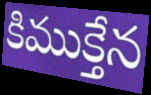
కిముక్తేన